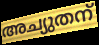
അച്യുതന്